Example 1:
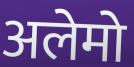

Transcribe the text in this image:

अलेमो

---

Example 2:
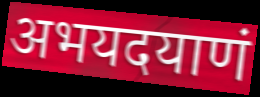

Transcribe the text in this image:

अभयदयाणं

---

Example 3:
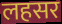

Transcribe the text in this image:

लहसर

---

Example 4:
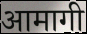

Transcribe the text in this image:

आमागी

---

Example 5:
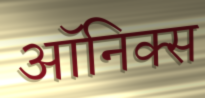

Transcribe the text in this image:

ऑनिक्स